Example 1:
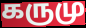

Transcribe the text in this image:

கருமு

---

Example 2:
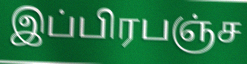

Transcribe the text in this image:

இப்பிரபஞ்ச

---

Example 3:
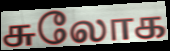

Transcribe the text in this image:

சுலோக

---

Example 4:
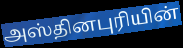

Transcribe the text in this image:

அஸ்தினபுரியின்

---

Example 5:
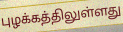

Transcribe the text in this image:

புழக்கத்திலுள்ளது